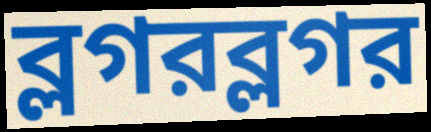
ব্লগরব্লগর